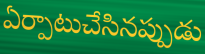
ఏర్పాటుచేసినప్పుడు